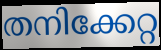
തനിക്കേറ്റ